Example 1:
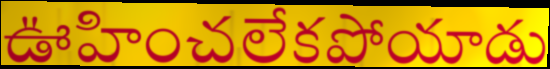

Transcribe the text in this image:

ఊహించలేకపోయాడు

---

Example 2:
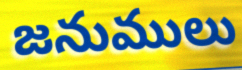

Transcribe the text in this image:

జనుములు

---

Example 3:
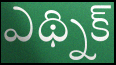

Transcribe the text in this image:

ఎథ్నిక్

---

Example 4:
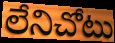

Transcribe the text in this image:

లేనిచోటు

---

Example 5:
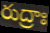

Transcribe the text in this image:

రుద్రాః